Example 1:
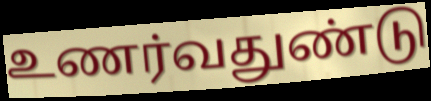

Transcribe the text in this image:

உணர்வதுண்டு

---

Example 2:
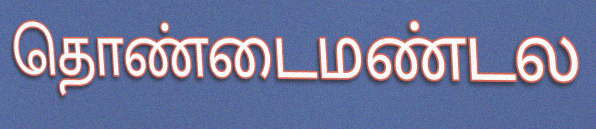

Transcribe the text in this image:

தொண்டைமண்டல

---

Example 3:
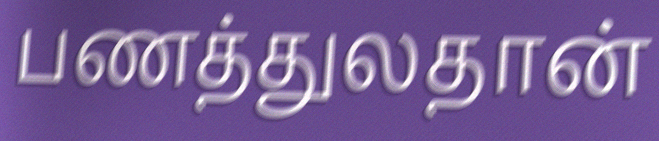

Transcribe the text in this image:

பணத்துலதான்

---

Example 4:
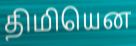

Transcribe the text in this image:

திமியென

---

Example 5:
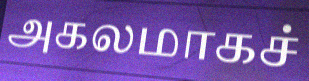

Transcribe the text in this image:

அகலமாகச்